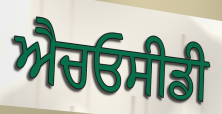
ਐਚਓਸੀਡੀ